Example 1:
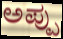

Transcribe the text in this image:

ಅಪ್ಪು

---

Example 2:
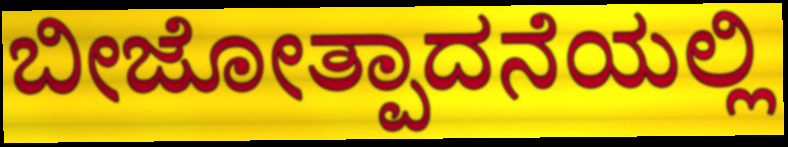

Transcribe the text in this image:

ಬೀಜೋತ್ಪಾದನೆಯಲ್ಲಿ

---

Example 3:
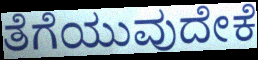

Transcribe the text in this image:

ತೆಗೆಯುವುದೇಕೆ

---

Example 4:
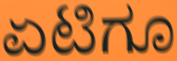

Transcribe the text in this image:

ಏಟಿಗೂ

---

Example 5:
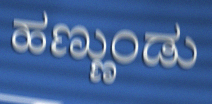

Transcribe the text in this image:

ಹಣ್ಣುಂಡು